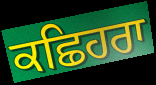
ਕਛਿਹਰਾ